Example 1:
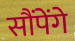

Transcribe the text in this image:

सौंपेंगे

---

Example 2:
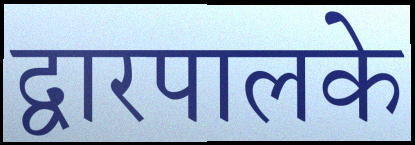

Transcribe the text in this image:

द्वारपालके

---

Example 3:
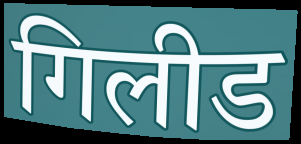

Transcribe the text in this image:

गिलीड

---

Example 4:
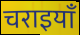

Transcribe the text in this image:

चराइयाँ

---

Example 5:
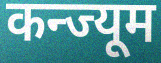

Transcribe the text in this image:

कन्ज्यूम